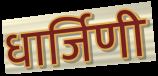
धार्जिणी